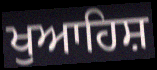
ਖੁਆਹਿਸ਼